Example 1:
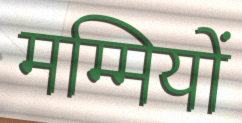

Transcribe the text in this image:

मम्मियों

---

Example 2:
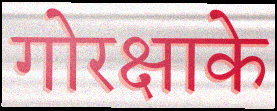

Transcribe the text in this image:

गोरक्षाके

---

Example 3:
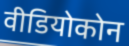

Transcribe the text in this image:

वीडियोकोन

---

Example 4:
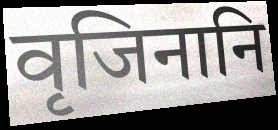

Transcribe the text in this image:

वृजिनानि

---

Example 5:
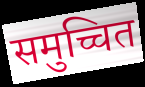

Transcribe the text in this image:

समुच्चित